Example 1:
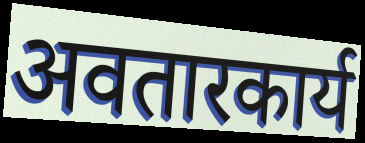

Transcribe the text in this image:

अवतारकार्य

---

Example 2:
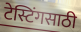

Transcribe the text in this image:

टेस्टिंगसाठी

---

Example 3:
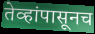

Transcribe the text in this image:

तेव्हांपासूनच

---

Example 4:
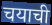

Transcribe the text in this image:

चयाची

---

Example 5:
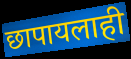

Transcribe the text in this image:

छापायलाही